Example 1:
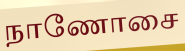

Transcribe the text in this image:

நாணோசை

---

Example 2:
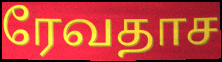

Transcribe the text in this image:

ரேவதாச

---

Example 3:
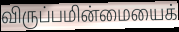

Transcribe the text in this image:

விருப்பமின்மையைக்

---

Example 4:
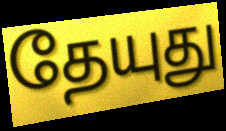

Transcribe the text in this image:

தேயுது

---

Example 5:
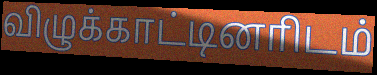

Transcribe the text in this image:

விழுக்காட்டினரிடம்